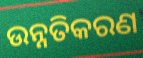
ଉନ୍ନତିକରଣ